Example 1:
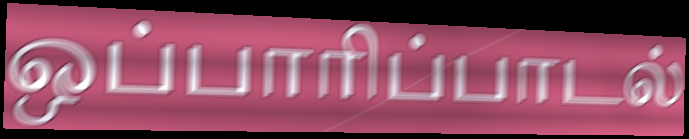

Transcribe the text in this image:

ஒப்பாரிப்பாடல்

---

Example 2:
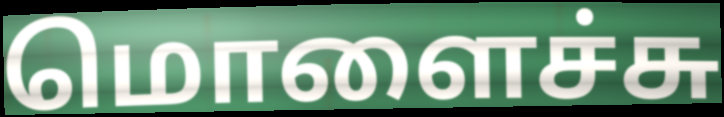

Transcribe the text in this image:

மொளைச்சு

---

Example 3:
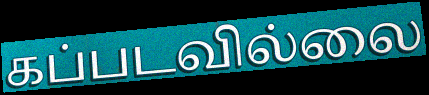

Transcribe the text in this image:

கப்படவில்லை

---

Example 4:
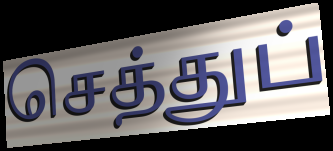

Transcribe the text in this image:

செத்துப்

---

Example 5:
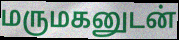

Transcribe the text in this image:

மருமகனுடன்